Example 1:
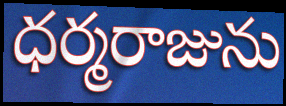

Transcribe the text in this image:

ధర్మరాజును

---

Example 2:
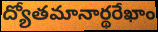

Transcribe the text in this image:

ద్యోతమానార్థరేఖాం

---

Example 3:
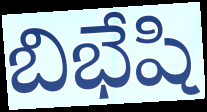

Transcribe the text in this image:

బిభేషి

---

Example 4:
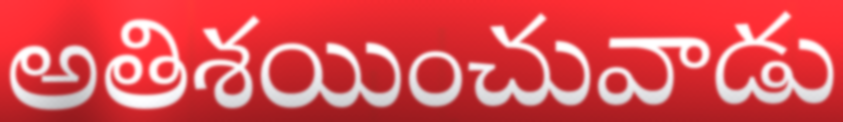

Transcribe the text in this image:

అతిశయించువాడు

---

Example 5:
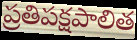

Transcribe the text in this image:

ప్రతిపక్షపాలిత